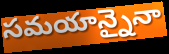
సమయాన్నైనా